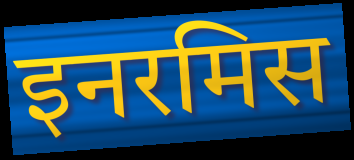
इनरमिस